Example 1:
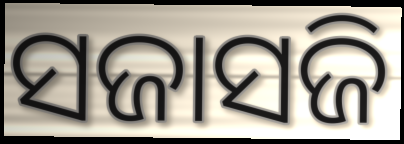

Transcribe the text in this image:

ସଜାସଜି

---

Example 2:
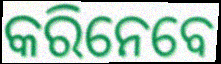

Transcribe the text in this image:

କରିନେବେ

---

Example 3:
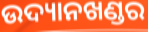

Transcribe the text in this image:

ଉଦ୍ୟାନଖଣ୍ଡର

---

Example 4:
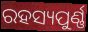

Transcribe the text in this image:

ରହସ୍ୟପୁର୍ଣ୍ଣ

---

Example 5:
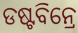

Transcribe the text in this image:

ଡଷ୍ଟବିନ୍ରେ